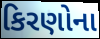
કિરણોના